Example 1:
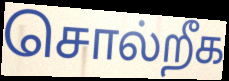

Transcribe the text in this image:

சொல்றீக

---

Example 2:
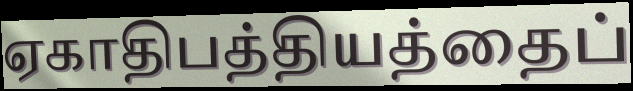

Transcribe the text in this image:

ஏகாதிபத்தியத்தைப்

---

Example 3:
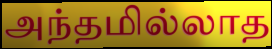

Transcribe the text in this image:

அந்தமில்லாத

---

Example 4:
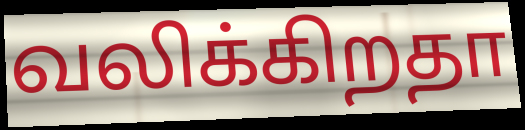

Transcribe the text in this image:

வலிக்கிறதா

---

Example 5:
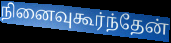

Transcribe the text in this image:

நினைவுகூர்ந்தேன்